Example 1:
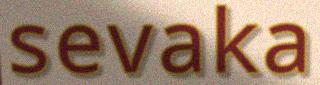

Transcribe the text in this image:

sevaka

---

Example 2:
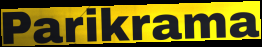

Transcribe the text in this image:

Parikrama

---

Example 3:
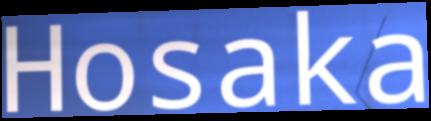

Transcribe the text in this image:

Hosaka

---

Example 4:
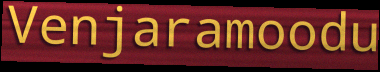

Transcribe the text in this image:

Venjaramoodu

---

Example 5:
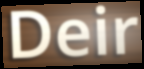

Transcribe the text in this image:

Deir